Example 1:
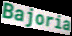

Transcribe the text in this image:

Bajoria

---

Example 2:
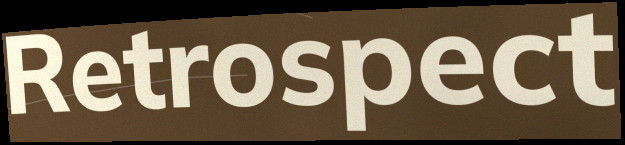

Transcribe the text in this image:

Retrospect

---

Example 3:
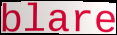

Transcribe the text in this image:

blare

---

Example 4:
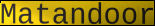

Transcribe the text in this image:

Matandoor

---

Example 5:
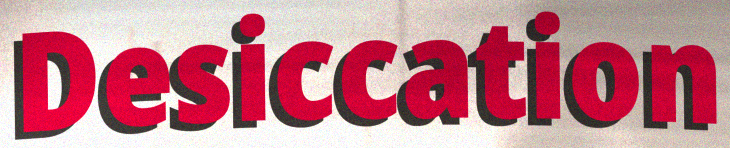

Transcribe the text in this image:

Desiccation